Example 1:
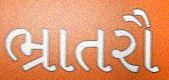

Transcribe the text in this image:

ભ્રાતરૌ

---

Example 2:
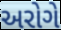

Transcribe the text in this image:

અરોગે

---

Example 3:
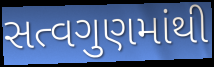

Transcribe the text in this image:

સત્વગુણમાંથી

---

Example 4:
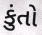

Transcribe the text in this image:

કુંતો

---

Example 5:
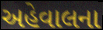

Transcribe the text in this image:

અહેવાલના